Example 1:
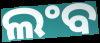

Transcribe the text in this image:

ଲଂବ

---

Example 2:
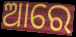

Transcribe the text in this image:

ଆରେ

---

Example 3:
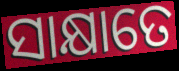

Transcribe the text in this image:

ସାକ୍ଷାତେ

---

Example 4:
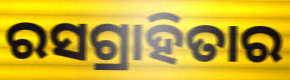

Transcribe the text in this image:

ରସଗ୍ରାହିତାର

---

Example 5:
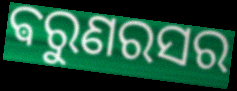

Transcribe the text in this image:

ଵରୁଣରସର